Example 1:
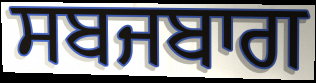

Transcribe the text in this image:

ਸਬਜਬਾਗ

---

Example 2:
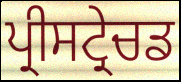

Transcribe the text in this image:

ਪ੍ਰੀਸਟ੍ਰੇਚਡ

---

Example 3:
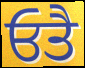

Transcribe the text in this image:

ਓਤੈ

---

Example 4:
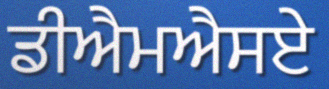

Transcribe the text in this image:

ਡੀਐਮਐਸਏ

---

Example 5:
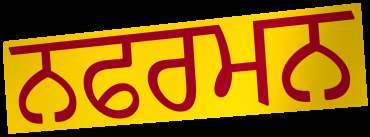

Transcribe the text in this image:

ਨਫਰਮਨ